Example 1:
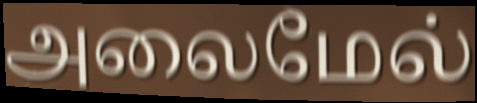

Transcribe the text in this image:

அலைமேல்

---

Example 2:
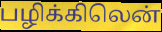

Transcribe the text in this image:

பழிக்கிலென்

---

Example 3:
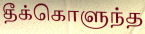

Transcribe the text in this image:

தீக்கொளுந்த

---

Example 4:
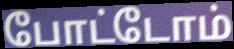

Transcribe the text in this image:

போட்டோம்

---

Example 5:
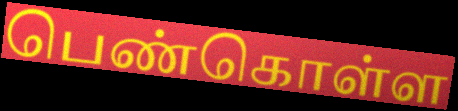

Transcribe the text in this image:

பெண்கொள்ள